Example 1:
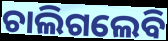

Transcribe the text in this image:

ଚାଲିଗଲେବି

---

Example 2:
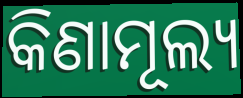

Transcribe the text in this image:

କିଣାମୂଲ୍ୟ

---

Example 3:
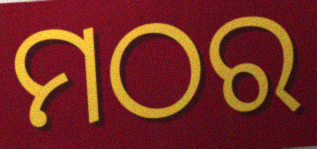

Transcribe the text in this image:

ମଠର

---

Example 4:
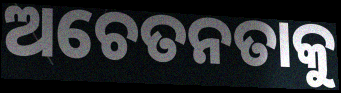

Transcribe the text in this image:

ଅଚେତନତାକୁ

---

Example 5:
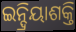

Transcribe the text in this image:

ଇନ୍ଦ୍ରିୟାଶକ୍ତି